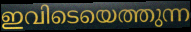
ഇവിടെയെത്തുന്ന